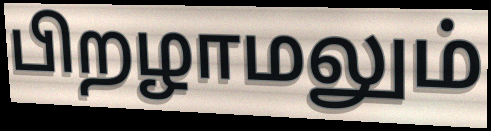
பிறழாமலும்